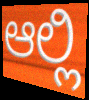
ಆಲ್ಲಿ